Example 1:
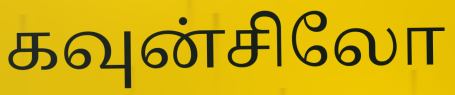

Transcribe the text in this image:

கவுன்சிலோ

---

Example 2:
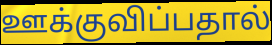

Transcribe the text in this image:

ஊக்குவிப்பதால்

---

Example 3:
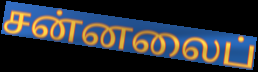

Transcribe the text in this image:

சன்னலைப்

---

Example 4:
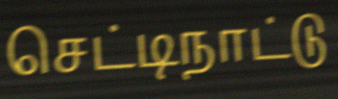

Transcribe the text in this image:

செட்டிநாட்டு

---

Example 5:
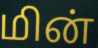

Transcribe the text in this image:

மின்